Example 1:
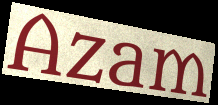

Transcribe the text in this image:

Azam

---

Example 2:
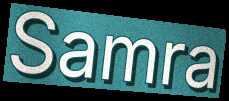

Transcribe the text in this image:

Samra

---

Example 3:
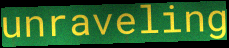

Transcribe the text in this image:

unraveling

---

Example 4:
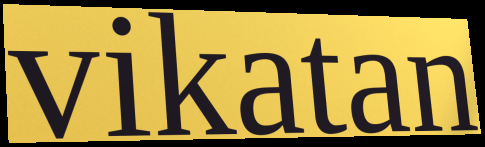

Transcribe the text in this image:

vikatan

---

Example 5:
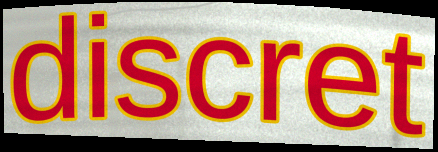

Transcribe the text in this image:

discret